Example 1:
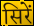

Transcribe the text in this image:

सिरें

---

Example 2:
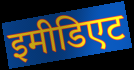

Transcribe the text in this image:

इमीडिएट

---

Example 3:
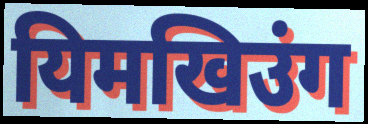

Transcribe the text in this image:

यिमखिउंग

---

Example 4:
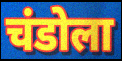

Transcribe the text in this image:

चंडोला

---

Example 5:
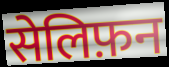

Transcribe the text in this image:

सेलिफ़न